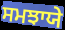
ਸਮਝਾਯੇ